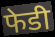
फेडी